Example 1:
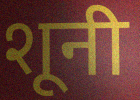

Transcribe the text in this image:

शूनी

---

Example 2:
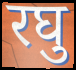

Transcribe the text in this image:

रघु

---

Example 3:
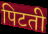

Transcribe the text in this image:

पिटती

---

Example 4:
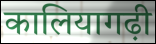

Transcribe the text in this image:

कालियागढ़ी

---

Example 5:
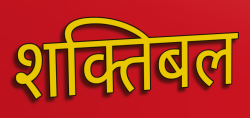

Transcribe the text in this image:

शक्तिबल